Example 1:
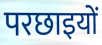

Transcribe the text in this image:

परछाइयों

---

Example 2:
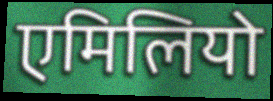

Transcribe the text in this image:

एमिलियो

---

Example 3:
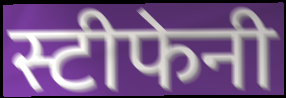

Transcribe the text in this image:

स्टीफेनी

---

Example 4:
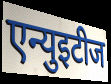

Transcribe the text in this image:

एन्युइटीज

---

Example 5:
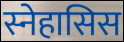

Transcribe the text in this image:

स्नेहासिस